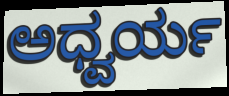
ಅಧ್ವರ್ಯ